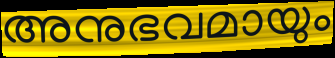
അനുഭവമായും